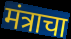
मंत्राचा